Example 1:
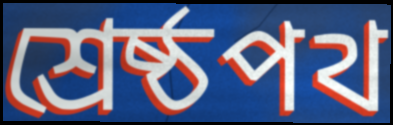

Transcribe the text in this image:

শ্রেষ্ঠপথ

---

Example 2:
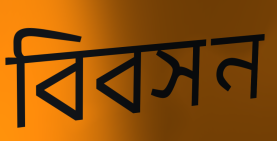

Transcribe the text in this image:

বিবসন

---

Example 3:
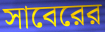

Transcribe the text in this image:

সাবেরের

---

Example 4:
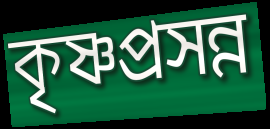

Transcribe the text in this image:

কৃষ্ণপ্রসন্ন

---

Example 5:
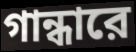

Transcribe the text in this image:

গান্ধারে